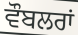
ਵੌਬਲਰਾਂ